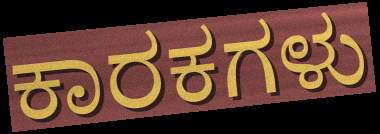
ಕಾರಕಗಳು